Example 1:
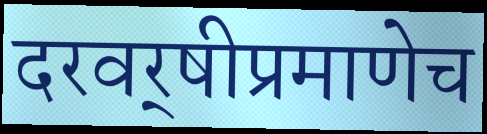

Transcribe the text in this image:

दरवर्षीप्रमाणेच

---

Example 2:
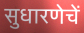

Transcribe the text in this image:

सुधारणेचें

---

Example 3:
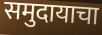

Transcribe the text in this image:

समुदायाचा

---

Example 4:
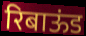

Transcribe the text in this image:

रिबाऊंड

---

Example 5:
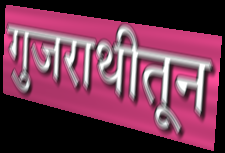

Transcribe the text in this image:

गुजराथीतून